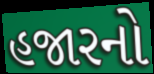
હજારનો